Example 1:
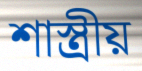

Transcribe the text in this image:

শাস্ত্রীয়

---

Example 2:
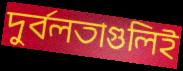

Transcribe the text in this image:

দুর্বলতাগুলিই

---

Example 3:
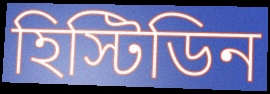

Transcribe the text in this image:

হিস্টিডিন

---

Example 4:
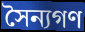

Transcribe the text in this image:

সৈন্যগণ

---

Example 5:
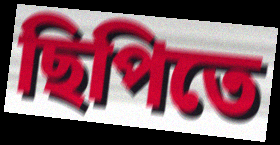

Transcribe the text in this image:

ছিপিতে